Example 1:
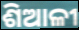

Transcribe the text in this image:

ଶିଆଳୀ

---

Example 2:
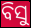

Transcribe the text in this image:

ବିସୁ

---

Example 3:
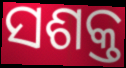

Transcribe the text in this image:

ସଶକ୍ତ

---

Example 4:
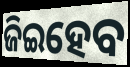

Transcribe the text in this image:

ଜିଇହେବ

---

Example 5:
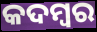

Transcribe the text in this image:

କଦମ୍ବର